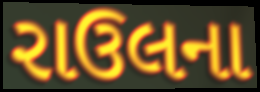
રાઉલના